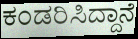
ಕಂಡರಿಸಿದ್ದಾನೆ